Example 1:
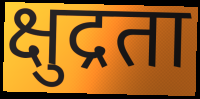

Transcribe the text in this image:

क्षुद्रता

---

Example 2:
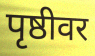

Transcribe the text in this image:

पृष्ठीवर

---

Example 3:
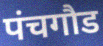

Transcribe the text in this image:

पंचगौड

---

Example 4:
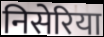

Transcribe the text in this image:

निसेरिया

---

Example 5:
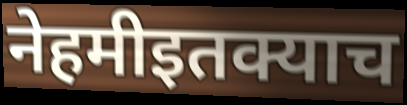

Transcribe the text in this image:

नेहमीइतक्याच